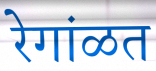
रेगांळत